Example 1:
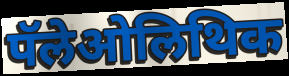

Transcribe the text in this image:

पॅलेओलिथिक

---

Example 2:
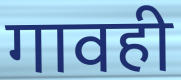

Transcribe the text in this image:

गावही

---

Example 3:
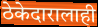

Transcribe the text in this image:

ठेकेदारालाही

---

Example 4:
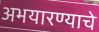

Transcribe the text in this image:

अभयारण्याचे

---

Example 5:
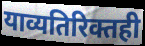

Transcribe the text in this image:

याव्यतिरिक्तही